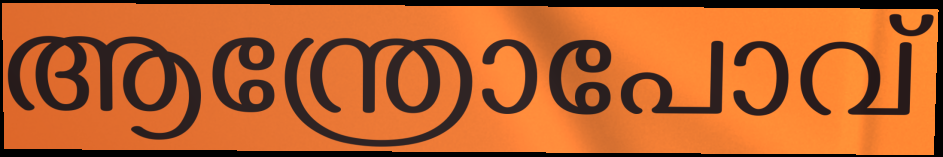
ആന്ത്രോപോവ്